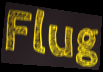
Flug